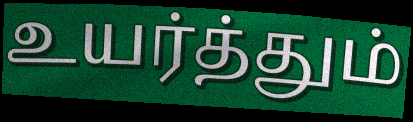
உயர்த்தும்